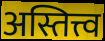
अस्तित्त्व